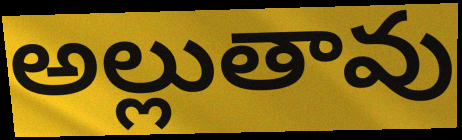
అల్లుతావు